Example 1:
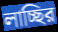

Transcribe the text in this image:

লাচ্ছির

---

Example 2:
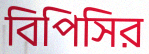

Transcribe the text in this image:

বিপিসির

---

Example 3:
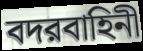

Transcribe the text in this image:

বদরবাহিনী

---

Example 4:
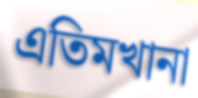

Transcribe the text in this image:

এতিমখানা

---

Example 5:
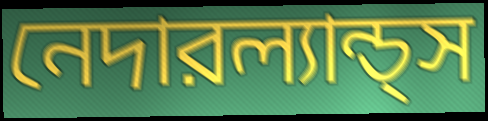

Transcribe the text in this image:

নেদারল্যান্ড্‌স